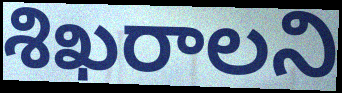
శిఖరాలని